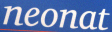
neonat